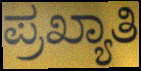
ಪ್ರಖ್ಯಾತಿ